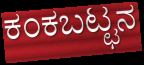
ಕಂಕಬಟ್ಟನ